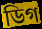
ডিগ